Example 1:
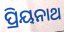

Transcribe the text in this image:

ପ୍ରିୟନାଥ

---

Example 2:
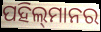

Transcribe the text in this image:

ପହିଲ୍‌ମାନର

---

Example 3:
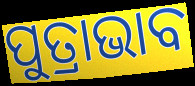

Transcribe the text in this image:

ପୁତ୍ରାଭାବ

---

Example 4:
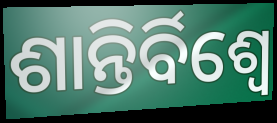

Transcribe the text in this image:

ଶାନ୍ତିର୍ବିଶ୍ୱେ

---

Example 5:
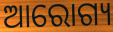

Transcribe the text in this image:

ଆରୋଗ୍ଯ